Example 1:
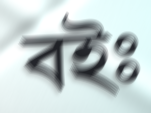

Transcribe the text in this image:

বইঃ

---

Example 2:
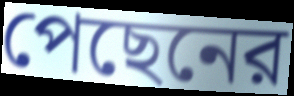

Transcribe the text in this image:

পেছেনের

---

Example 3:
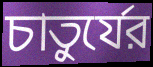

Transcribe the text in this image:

চাতুর্যের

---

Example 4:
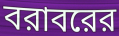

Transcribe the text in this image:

বরাবরের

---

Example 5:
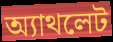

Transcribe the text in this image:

অ্যাথলেট